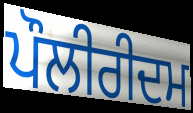
ਪੌਲੀਰੀਦਮ